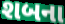
શબના